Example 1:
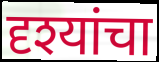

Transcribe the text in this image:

दृश्यांचा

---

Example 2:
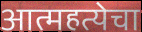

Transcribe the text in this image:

आत्महत्येचा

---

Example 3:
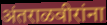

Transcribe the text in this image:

अंतराळवीरांना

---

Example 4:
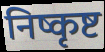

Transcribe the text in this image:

निष्कृष्ट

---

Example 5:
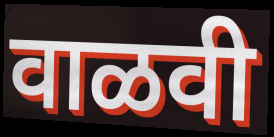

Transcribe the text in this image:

वाळवी